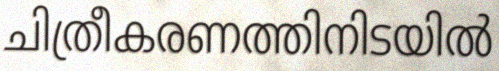
ചിത്രീകരണത്തിനിടയിൽ